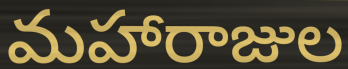
మహారాజుల